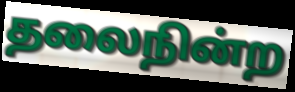
தலைநின்ற